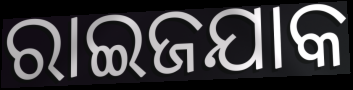
ରାଇଜଯାକ